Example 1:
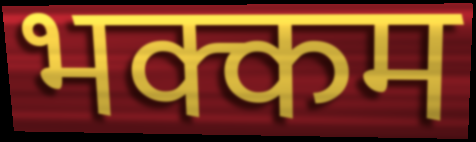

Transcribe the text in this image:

भक्कम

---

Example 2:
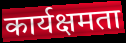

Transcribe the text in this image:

कार्यक्षमता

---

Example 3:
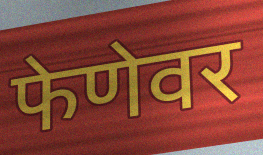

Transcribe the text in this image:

फेणेवर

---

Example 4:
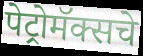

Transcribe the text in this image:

पेट्रोमॅक्सचे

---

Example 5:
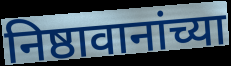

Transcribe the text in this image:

निष्ठावानांच्या